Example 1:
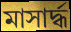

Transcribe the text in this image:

মাসার্দ্ধ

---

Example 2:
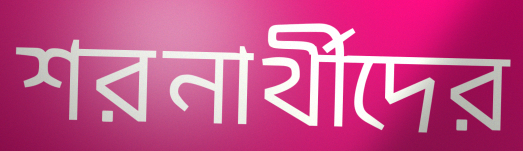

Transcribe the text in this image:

শরনার্থীদের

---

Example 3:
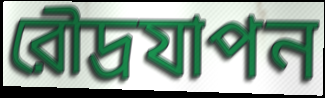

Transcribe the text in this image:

রৌদ্রযাপন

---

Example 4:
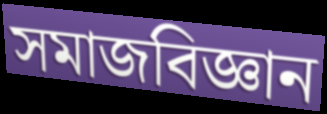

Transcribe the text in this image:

সমাজবিজ্ঞান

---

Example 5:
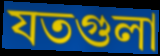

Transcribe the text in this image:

যতগুলা